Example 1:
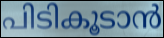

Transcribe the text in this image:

പിടികൂടാൻ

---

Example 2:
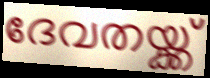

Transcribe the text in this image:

ദേവതയ്ക്ക്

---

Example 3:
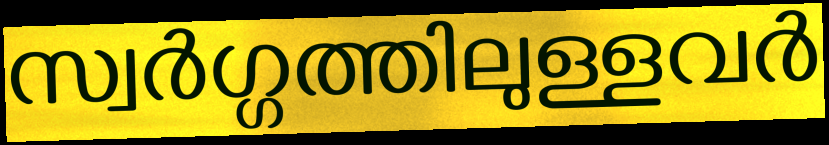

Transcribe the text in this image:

സ്വർഗ്ഗത്തിലുള്ളവർ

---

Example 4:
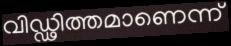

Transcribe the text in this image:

വിഡ്ഢിത്തമാണെന്ന്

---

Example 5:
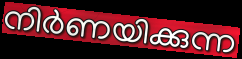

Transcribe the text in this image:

നിർണയിക്കുന്ന